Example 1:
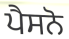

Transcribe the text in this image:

ਪੈਸਨੋ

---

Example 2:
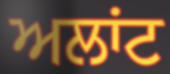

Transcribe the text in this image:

ਅਲਾਂਟ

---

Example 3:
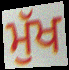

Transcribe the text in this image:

ਮੁੱਖ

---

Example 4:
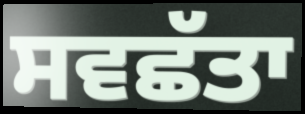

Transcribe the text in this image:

ਸਵਛੱਤਾ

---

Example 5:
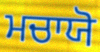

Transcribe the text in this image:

ਮਚਾਯੋ